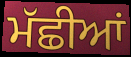
ਮੱਛੀਆਂ